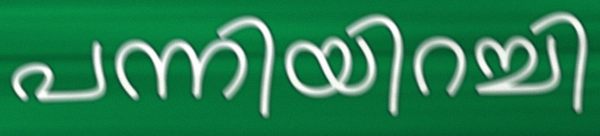
പന്നിയിറച്ചി